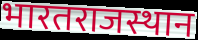
भारतराजस्थान